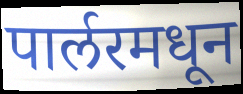
पार्लरमधून